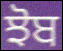
ਝੋਬ